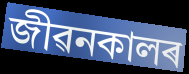
জীৱনকালৰ